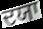
ਦਯਾ